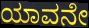
ಯಾವನೇ